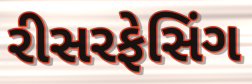
રીસરફેસિંગ